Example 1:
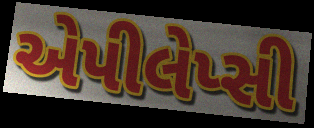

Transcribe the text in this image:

એપીલેપ્સી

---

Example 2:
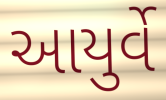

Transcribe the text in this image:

આયુર્વે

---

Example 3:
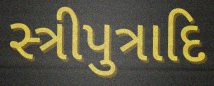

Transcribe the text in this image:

સ્ત્રીપુત્રાદિ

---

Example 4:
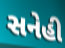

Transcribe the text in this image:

સનેહી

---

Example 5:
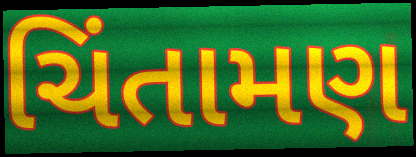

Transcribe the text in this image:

ચિંતામણ